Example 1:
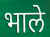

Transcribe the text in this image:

भाले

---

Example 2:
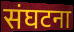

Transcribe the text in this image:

संघटना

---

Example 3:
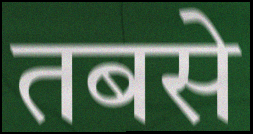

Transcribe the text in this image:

तबसे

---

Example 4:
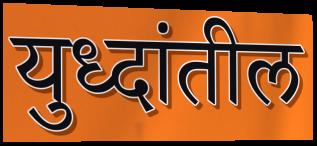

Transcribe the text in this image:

युध्दांतील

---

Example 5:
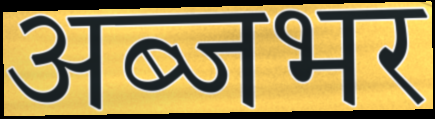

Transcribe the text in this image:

अब्जभर